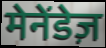
मेनेंडेज़